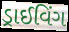
ડ્રાઈવિંગ